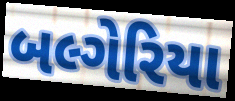
બલ્ગેરિયા